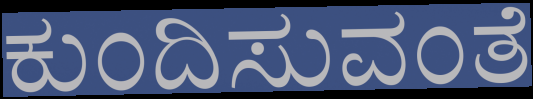
ಕುಂದಿಸುವಂತೆ